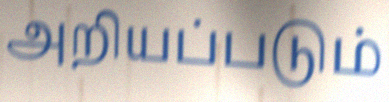
அறியப்படும்